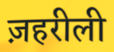
ज़हरीली